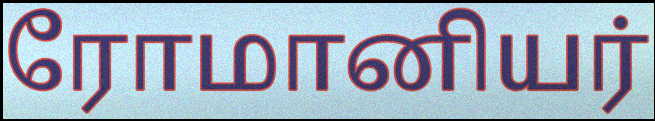
ரோமானியர்